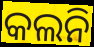
କଲନି